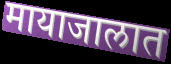
मायाजालात